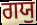
ਗਯੁ